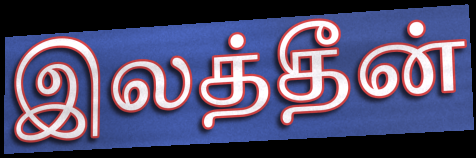
இலத்தீன்